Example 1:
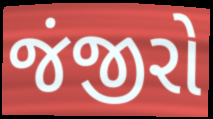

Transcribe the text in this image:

જંજીરો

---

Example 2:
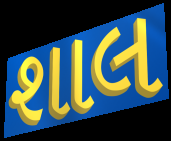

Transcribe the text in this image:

શાલ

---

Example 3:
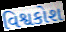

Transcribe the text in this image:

વિશ્વકોશ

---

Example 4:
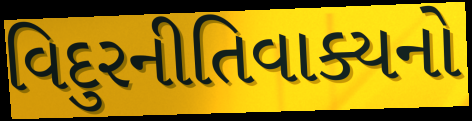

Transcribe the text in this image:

વિદુરનીતિવાક્યનો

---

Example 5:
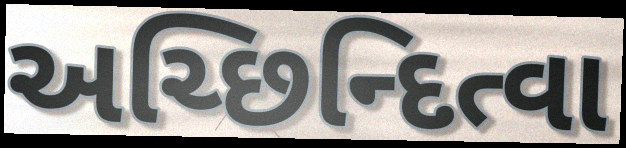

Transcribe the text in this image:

અચ્છિન્દિત્વા